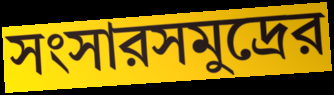
সংসারসমুদ্রের